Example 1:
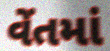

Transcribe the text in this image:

વેંતમાં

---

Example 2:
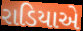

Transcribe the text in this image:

રાડિયાએ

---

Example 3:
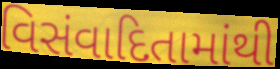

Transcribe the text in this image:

વિસંવાદિતામાંથી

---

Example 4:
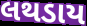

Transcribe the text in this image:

લથડાય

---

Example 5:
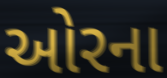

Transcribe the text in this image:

ઓરના